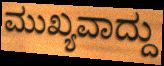
ಮುಖ್ಯವಾದ್ದು